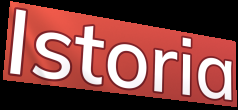
Istoria